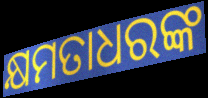
କ୍ଷମତାଧରଙ୍କ